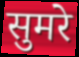
सुमरे